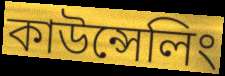
কাউন্সেলিং